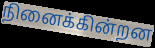
நினைக்கின்றன